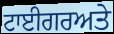
ਟਾਈਗਰਅਤੇ